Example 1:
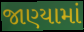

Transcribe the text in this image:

જાણ્યામાં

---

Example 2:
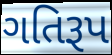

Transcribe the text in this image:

ગતિરૂપ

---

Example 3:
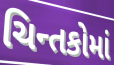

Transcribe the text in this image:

ચિન્તકોમાં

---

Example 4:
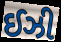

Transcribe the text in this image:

ઈઝી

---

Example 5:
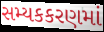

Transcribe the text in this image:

સમ્યકકરણમાં